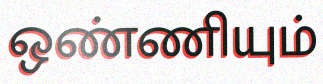
ஒண்ணியும்